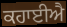
ਕਹਾਈਐ